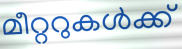
മീറ്ററുകൾക്ക്